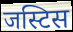
जस्टिस